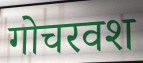
गोचरवश